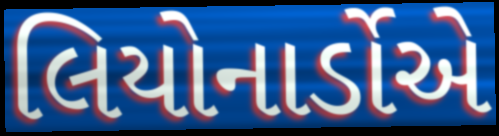
લિયોનાર્ડોએ